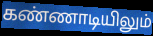
கண்ணாடியிலும்